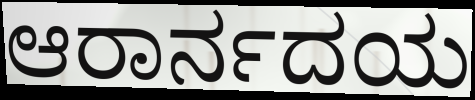
ಆರಾರ್ನದಯ